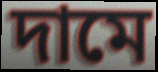
দামে